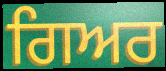
ਗਿਅਰ